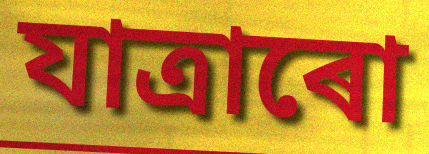
যাত্ৰাৰো